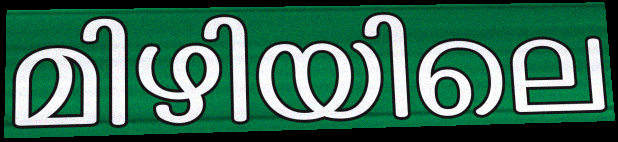
മിഴിയിലെ